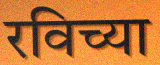
रविच्या